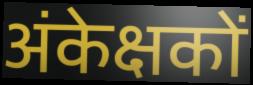
अंकेक्षकों